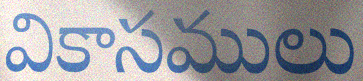
వికాసములు